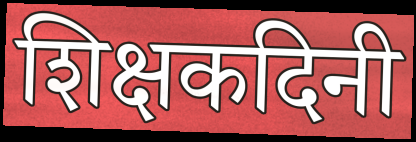
शिक्षकदिनी